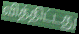
வித்திட்டது